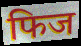
फिज